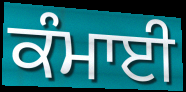
ਕੰਮਾਈ